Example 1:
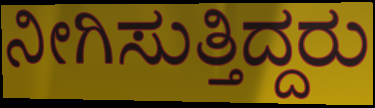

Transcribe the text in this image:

ನೀಗಿಸುತ್ತಿದ್ದರು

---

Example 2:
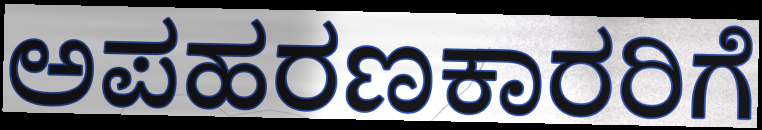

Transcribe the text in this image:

ಅಪಹರಣಕಾರರಿಗೆ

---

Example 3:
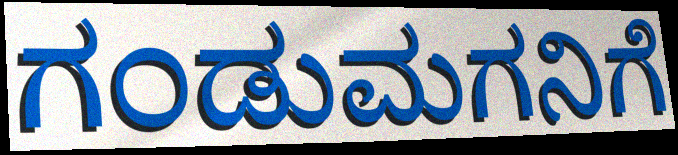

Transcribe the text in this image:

ಗಂಡುಮಗನಿಗೆ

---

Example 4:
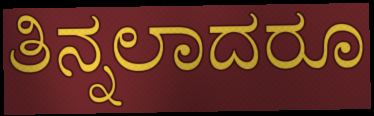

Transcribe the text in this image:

ತಿನ್ನಲಾದರೂ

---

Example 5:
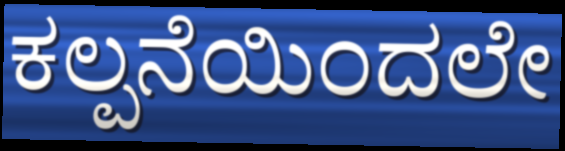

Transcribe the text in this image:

ಕಲ್ಪನೆಯಿಂದಲೇ